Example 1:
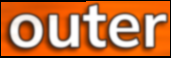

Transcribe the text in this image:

outer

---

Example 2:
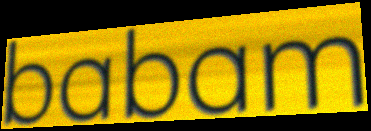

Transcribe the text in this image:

babam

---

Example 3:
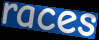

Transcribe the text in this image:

races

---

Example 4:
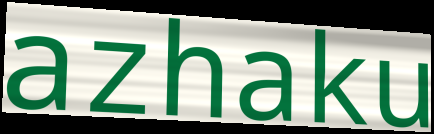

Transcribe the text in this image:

azhaku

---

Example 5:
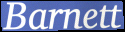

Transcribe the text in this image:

Barnett